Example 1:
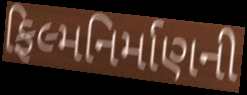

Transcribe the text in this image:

ફિલ્મનિર્માણની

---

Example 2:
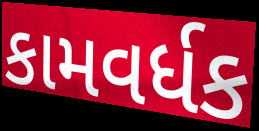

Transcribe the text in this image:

કામવર્ધક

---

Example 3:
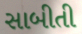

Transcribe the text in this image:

સાબીતી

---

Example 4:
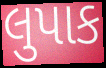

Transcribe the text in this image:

લુપાક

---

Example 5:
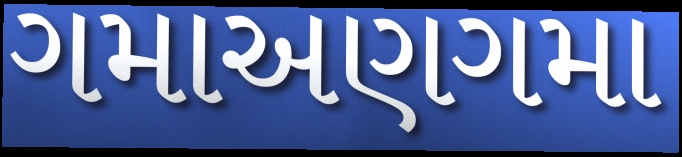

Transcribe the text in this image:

ગમાઅણગમા